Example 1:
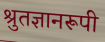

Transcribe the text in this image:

श्रुतज्ञानरूपी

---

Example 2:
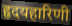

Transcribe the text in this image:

हृदयहारिणी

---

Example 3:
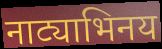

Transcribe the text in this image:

नाट्याभिनय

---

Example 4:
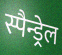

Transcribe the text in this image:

स्पैन्ड्रेल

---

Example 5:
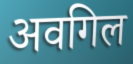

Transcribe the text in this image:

अवगिल